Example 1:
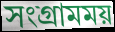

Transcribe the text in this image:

সংগ্রামময়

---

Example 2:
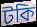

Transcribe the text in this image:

টকি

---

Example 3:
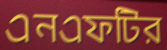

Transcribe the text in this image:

এনএফটির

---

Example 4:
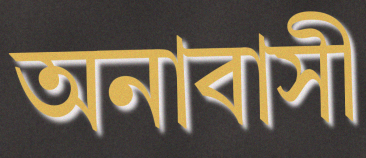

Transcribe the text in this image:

অনাবাসী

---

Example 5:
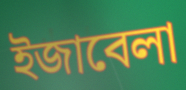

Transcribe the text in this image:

ইজাবেলা